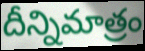
దీన్నిమాత్రం